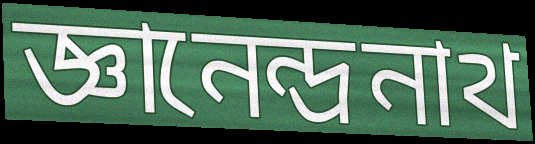
জ্ঞানেন্দ্রনাথ